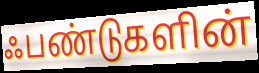
ஃபண்டுகளின்